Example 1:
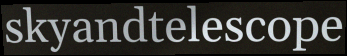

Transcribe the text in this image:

skyandtelescope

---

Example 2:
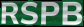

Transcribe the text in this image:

RSPB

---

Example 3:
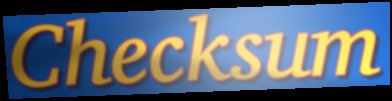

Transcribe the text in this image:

Checksum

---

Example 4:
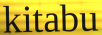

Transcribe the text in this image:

kitabu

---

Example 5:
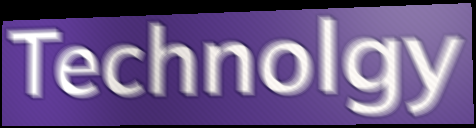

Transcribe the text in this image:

Technolgy